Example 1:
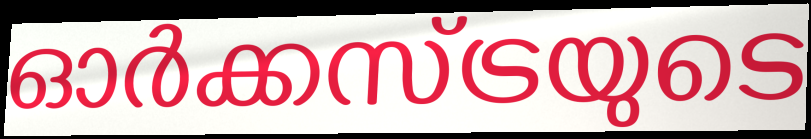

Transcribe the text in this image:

ഓർക്കസ്ട്രയുടെ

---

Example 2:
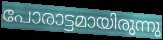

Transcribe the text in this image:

പോരാട്ടമായിരുന്നു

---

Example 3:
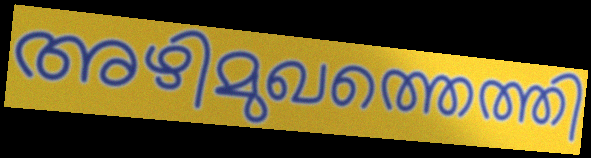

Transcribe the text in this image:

അഴിമുഖത്തെത്തി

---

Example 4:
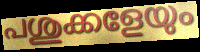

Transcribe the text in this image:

പശുക്കളേയും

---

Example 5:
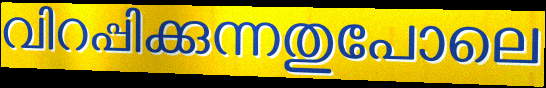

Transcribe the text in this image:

വിറപ്പിക്കുന്നതുപോലെ